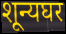
शून्यघर